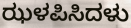
ಝಳಪಿಸಿದಳು